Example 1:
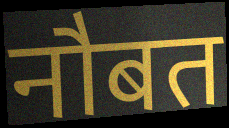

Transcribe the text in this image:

नौबत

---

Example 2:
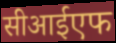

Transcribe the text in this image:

सीआईएफ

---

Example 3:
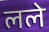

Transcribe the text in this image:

लले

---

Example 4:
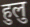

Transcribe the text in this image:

हुलु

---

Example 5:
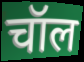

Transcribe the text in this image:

चॉल